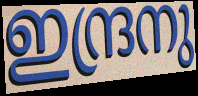
ഇന്ദ്രനു